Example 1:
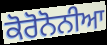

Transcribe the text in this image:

ਕੋਰੋਨੋਨੀਆ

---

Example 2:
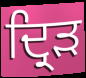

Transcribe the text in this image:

ਦ੍ਰਿੜ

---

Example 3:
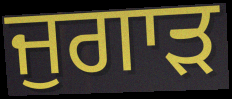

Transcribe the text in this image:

ਜੁਗਾੜ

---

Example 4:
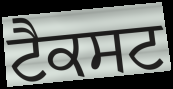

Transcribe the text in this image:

ਟੈਕਸਟ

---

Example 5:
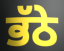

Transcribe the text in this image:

ਭੱਠੇ